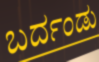
ಬರ್ದಂಡು